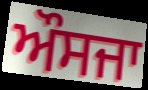
ਔਸਜਾ